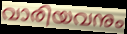
വാരിയവനും